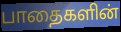
பாதைகளின்